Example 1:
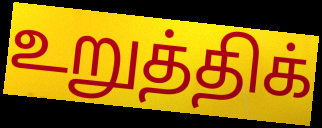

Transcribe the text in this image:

உறுத்திக்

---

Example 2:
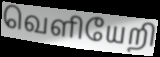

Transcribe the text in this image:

வெளியேறி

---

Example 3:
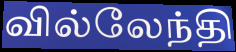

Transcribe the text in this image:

வில்லேந்தி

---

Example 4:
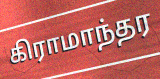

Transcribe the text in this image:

கிராமாந்தர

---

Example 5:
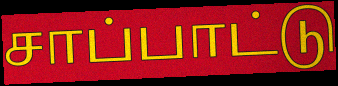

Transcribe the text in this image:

சாப்பாட்டு